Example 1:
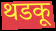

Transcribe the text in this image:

थडकू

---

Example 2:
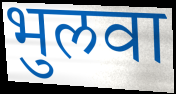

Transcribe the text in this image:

भुलवा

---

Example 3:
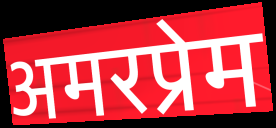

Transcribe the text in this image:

अमरप्रेम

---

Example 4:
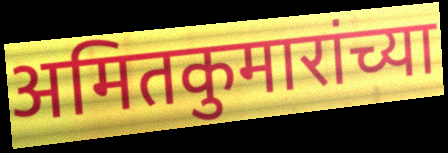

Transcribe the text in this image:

अमितकुमारांच्या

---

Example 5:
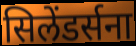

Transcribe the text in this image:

सिलेंडर्सना